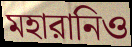
মহারানিও